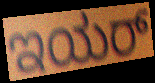
ಇಯರ್